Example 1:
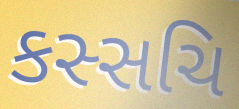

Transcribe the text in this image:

કસ્સચિ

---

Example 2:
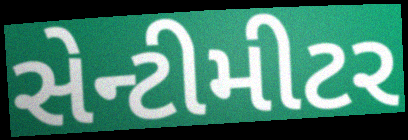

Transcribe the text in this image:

સેન્ટીમીટર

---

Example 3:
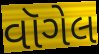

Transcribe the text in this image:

વૉગેલ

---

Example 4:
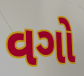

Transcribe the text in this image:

વગો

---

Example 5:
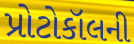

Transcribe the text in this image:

પ્રોટોકૉલની